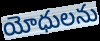
యోధులను